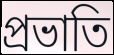
প্রভাতি